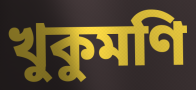
খুকুমণি